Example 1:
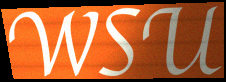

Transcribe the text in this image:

WSU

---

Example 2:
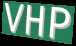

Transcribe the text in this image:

VHP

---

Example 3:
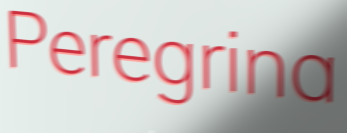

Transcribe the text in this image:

Peregrina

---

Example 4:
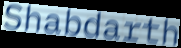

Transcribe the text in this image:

Shabdarth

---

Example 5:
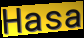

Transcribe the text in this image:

Hasa